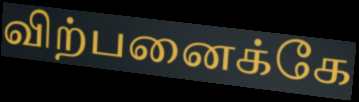
விற்பனைக்கே